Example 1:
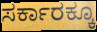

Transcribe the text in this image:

ಸರ್ಕಾರಕ್ಕೂ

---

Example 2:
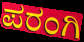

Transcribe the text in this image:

ಪರಂಗಿ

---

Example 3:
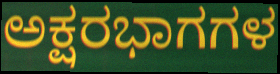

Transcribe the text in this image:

ಅಕ್ಷರಭಾಗಗಳ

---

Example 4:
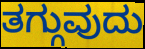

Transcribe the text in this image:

ತಗ್ಗುವುದು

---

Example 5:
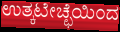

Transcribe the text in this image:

ಉತ್ಕಟೇಚ್ಛೆಯಿಂದ